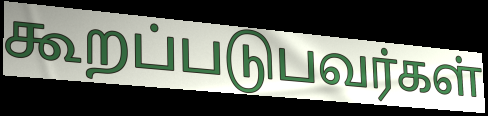
கூறப்படுபவர்கள்